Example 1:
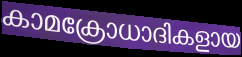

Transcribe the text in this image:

കാമക്രോധാദികളായ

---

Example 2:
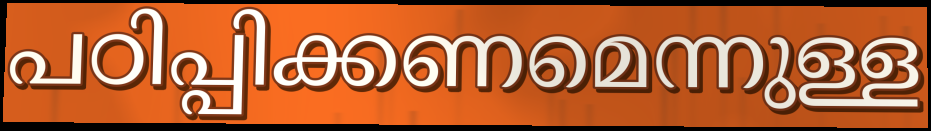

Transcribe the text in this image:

പഠിപ്പിക്കണമെന്നുള്ള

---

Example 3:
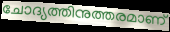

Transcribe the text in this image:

ചോദ്യത്തിനുത്തരമാണ്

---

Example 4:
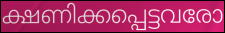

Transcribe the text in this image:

ക്ഷണിക്കപ്പെട്ടവരോ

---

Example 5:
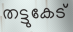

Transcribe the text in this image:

തട്ടുകേട്